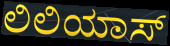
ಲಿಲಿಯಾಸ್